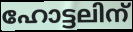
ഹോട്ടലിന്